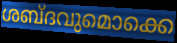
ശബ്ദവുമൊക്കെ